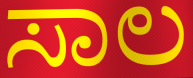
ಸಾಲ